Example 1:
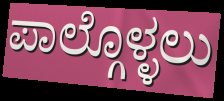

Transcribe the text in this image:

ಪಾಲ್ಗೊಳ್ಳಲು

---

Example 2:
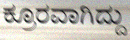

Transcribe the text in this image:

ಕ್ರೂರವಾಗಿದ್ದು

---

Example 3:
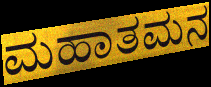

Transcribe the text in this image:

ಮಹಾತಮನ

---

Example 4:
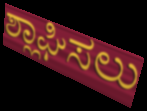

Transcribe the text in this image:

ಶ್ಲಾಘಿಸಲು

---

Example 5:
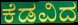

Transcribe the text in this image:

ಕೆಡವಿದ